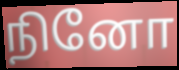
நினோ